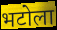
भटोला